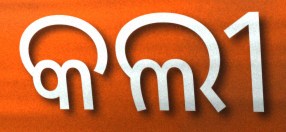
କଲୀ